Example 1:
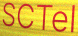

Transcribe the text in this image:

SCTel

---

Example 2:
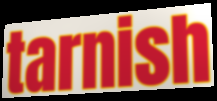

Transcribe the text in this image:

tarnish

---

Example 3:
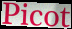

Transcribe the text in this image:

Picot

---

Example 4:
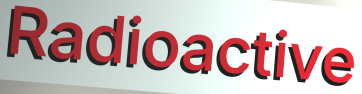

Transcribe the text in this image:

Radioactive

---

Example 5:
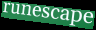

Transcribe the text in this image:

runescape